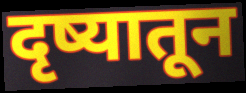
दृष्यातून